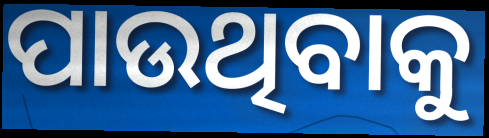
ପାଉଥିବାକୁ